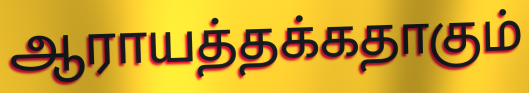
ஆராயத்தக்கதாகும்